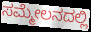
ಸಮ್ಮೇಲನದಲ್ಲಿ